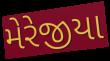
મેરેજીયા